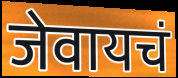
जेवायचं